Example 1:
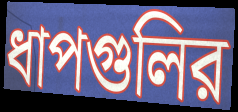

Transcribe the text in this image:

ধাপগুলির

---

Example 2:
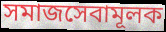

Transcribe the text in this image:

সমাজসেবামূলক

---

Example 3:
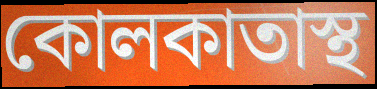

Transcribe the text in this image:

কোলকাতাস্থ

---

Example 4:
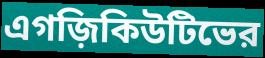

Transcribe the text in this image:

এগজ়িকিউটিভের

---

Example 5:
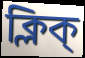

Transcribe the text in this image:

ক্লিক্